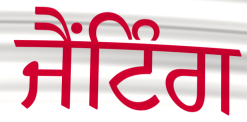
ਜੈਂਟਿੰਗ